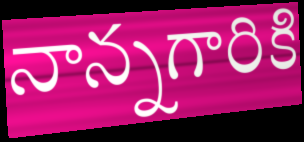
నాన్నగారికి